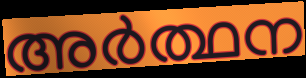
അർത്ഥന